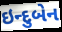
ઇન્દુબેન